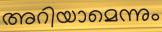
അറിയാമെന്നും